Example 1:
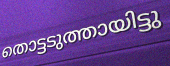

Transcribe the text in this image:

തൊട്ടടുത്തായിട്ടു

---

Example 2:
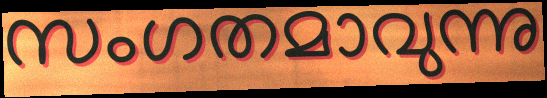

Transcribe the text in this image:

സംഗതമാവുന്നു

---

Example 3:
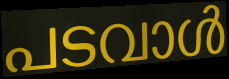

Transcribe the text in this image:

പടവാൾ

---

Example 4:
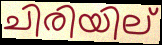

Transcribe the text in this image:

ചിരിയില്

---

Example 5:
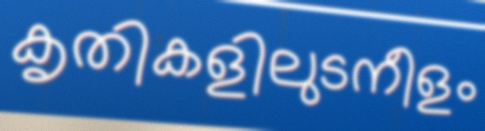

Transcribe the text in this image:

കൃതികളിലുടനീളം